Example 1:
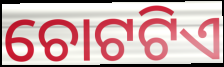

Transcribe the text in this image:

ଚୋଟଟିଏ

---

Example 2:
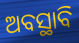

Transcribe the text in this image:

ଅବସ୍ଥାବି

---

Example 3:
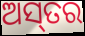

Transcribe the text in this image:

ଅସ୍‌ତର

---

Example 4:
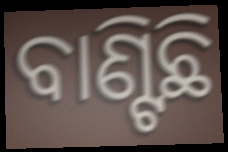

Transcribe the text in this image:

ବାଣ୍ଟିଛି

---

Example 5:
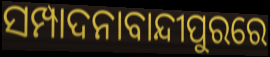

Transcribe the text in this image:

ସମ୍ପାଦନାବାନ୍ଦୀପୁରରେ